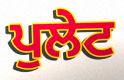
ਪੁਲੇਟ